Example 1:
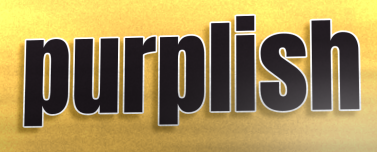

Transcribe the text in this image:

purplish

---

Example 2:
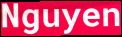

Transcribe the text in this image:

Nguyen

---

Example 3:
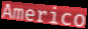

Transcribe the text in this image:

Americo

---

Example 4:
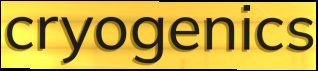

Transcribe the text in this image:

cryogenics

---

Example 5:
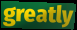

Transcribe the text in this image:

greatly